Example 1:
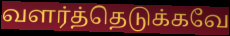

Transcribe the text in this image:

வளர்த்தெடுக்கவே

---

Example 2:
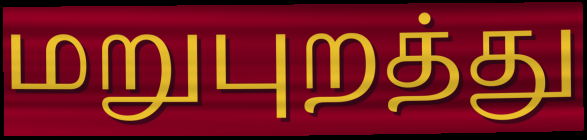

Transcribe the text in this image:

மறுபுறத்து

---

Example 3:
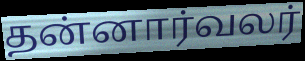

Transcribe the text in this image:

தன்னார்வலர்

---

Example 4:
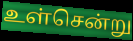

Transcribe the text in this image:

உள்சென்று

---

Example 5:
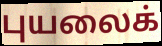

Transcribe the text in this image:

புயலைக்